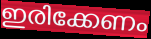
ഇരിക്കേണം